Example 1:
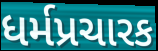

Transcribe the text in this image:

ધર્મપ્રચારક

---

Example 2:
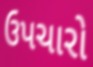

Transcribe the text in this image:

ઉપચારો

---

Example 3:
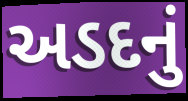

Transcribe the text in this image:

અડદનું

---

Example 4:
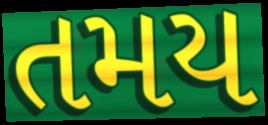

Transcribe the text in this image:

તમય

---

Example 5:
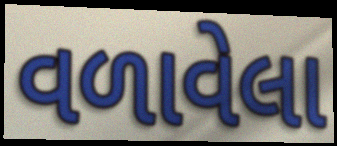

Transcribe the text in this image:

વળાવેલા